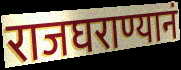
राजघराण्यानं